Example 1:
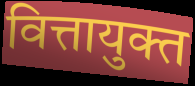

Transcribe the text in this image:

वित्तायुक्त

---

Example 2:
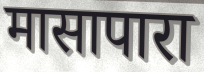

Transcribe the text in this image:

मासापारा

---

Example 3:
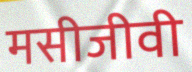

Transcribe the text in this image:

मसीजीवी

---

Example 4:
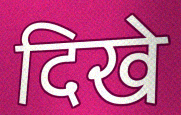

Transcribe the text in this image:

दिखे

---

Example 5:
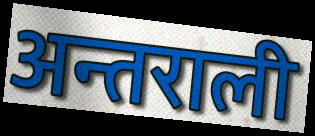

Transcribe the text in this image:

अन्तराली